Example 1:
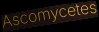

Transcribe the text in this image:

Ascomycetes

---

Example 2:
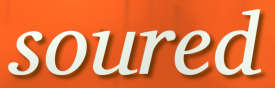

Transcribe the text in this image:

soured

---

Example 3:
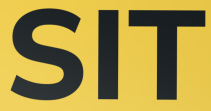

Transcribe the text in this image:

SIT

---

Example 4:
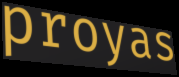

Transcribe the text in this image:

proyas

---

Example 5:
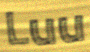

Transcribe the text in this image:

Luu